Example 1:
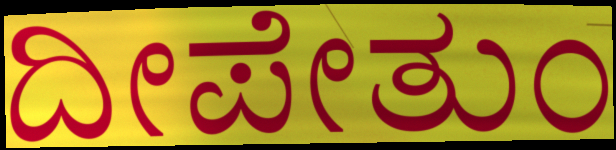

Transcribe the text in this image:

ದೀಪೇತುಂ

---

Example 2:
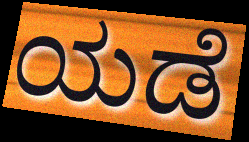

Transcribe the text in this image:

ಯಡೆ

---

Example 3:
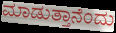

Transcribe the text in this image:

ಮಾಡುತ್ತಾನೆಂದು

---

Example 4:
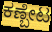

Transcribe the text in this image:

ಕಣ್ಬೇಟ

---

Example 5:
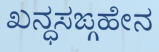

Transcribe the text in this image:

ಖನ್ಧಸಙ್ಗಹೇನ